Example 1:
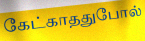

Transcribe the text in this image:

கேட்காததுபோல்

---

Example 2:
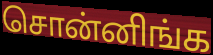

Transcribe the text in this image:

சொன்னிங்க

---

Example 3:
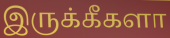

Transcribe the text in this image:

இருக்கீகளா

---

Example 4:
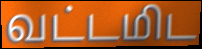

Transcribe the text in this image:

வட்டமிட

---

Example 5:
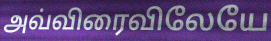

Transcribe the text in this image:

அவ்விரைவிலேயே